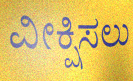
ವೀಕ್ಷಿಸಲು